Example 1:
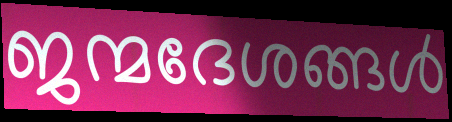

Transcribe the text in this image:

ജന്മദേശങ്ങൾ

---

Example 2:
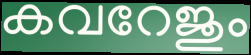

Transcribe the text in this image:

കവറേജും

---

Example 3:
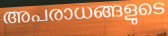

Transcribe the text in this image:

അപരാധങ്ങളുടെ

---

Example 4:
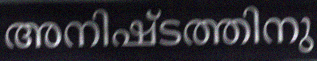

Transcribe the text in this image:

അനിഷ്ടത്തിനു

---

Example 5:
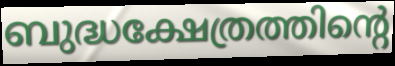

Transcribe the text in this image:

ബുദ്ധക്ഷേത്രത്തിന്റെ